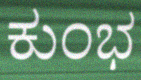
ಕುಂಭ